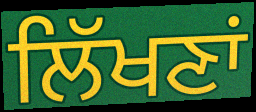
ਲਿੱਖਣਾਂ